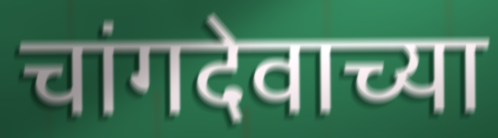
चांगदेवाच्या